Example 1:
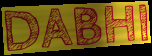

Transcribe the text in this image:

DABHI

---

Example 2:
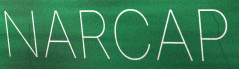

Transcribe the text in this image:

NARCAP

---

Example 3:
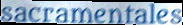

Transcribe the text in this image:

sacramentales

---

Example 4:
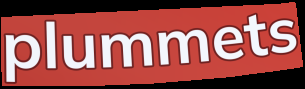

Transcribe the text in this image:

plummets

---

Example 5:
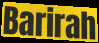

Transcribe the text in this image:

Barirah